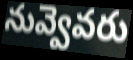
నువ్వెవరు